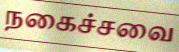
நகைச்சவை